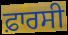
ਫ਼ਾਰਸੀ